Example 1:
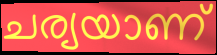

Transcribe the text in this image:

ചര്യയാണ്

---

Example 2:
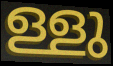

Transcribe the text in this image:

ള്ളു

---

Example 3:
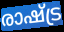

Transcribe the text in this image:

രാഷ്ട്ര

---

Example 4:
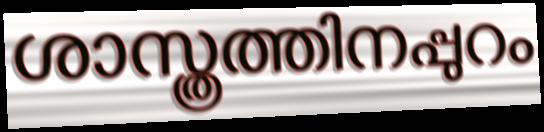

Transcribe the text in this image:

ശാസ്ത്രത്തിനപ്പുറം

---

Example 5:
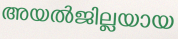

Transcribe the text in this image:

അയൽജില്ലയായ